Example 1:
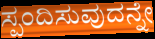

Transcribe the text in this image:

ಸ್ಪಂದಿಸುವುದನ್ನೇ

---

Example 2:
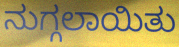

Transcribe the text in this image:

ನುಗ್ಗಲಾಯಿತು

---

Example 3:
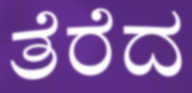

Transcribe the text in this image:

ತೆರೆದ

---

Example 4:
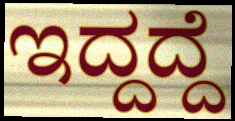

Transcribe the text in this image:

ಇದ್ದದ್ದೆ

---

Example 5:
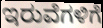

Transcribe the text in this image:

ಇರುವೆಗಳಿಗೆ